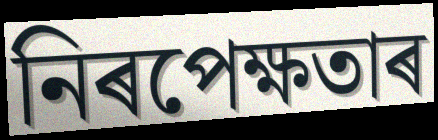
নিৰপেক্ষতাৰ